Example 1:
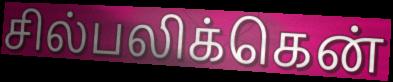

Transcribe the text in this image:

சில்பலிக்கென்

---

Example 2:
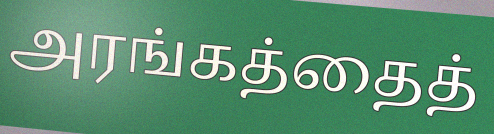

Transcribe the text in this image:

அரங்கத்தைத்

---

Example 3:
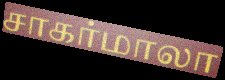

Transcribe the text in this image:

சாகர்மாலா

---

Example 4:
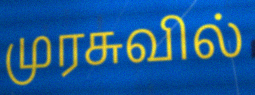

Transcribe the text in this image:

முரசுவில்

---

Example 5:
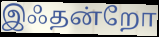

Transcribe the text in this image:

இஃதன்றோ